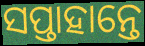
ସପ୍ତାହାନ୍ତେ